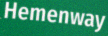
Hemenway